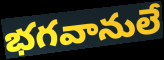
భగవానులే